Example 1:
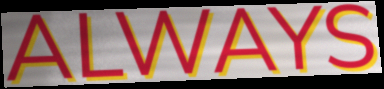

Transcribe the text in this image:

ALWAYS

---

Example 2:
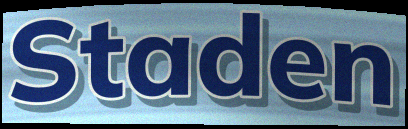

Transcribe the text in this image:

Staden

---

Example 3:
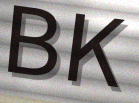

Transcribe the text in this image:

BK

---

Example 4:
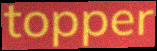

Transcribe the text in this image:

topper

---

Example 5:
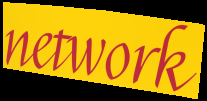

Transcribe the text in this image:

network